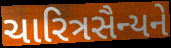
ચારિત્રસૈન્યને